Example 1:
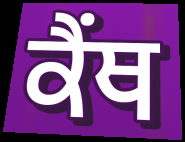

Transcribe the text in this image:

ਕੈਂਥ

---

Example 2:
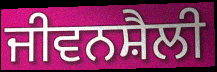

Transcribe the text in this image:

ਜੀਵਨਸ਼ੈਲੀ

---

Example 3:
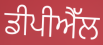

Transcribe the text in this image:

ਡੀਪੀਐੱਲ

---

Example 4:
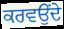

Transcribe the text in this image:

ਕਰਵਉਂਦੇ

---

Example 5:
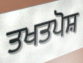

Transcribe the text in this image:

ਤਖਤਪੋਸ਼